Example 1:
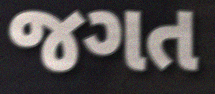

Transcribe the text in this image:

જગત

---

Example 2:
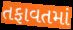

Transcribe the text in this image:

તફાવતમાં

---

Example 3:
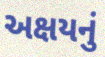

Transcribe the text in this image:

અક્ષયનું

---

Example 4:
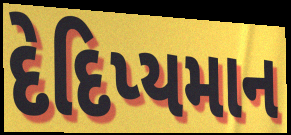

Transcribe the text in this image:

દેદિપ્યમાન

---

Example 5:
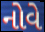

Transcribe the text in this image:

નોવે